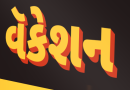
વૅકેશન